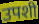
उपशी